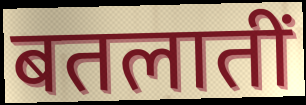
बतलातीं